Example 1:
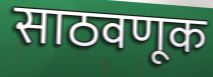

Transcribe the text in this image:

साठवणूक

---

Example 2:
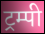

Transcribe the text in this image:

ट्रम्पी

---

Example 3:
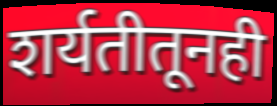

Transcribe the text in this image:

शर्यतीतूनही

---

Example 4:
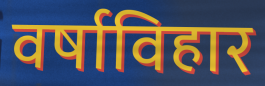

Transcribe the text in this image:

वर्षाविहार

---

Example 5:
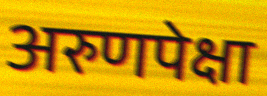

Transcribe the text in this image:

अरुणपेक्षा